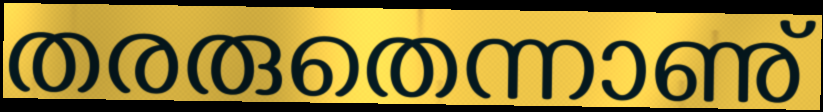
തരരുതെന്നാണു്